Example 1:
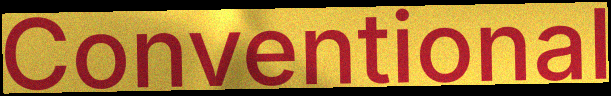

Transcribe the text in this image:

Conventional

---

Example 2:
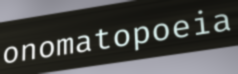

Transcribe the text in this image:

onomatopoeia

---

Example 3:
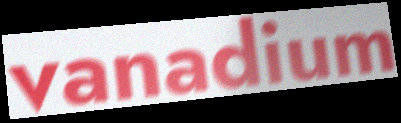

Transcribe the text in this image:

vanadium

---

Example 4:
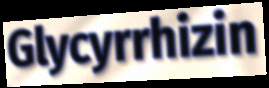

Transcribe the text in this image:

Glycyrrhizin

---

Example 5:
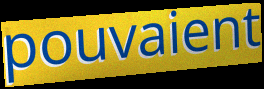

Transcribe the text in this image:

pouvaient